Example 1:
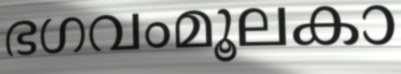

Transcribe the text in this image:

ഭഗവംമൂലകാ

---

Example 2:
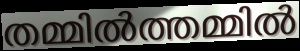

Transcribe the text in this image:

തമ്മിൽത്തമ്മിൽ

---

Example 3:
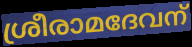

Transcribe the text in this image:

ശ്രീരാമദേവന്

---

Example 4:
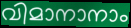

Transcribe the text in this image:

വിമാനാനാം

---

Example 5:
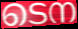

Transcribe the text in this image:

ടെന